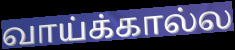
வாய்க்கால்ல